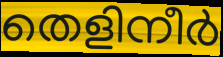
തെളിനീർ